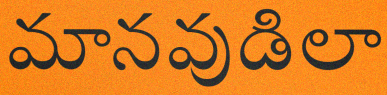
మానవుడిలా